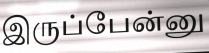
இருப்பேன்னு